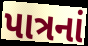
પાત્રનાં